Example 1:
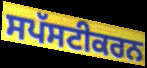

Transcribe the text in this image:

ਸਪੱਸਟੀਕਰਨ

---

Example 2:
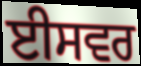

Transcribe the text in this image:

ਈਸਵਰ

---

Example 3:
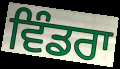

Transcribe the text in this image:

ਵਿੰਡਰਾ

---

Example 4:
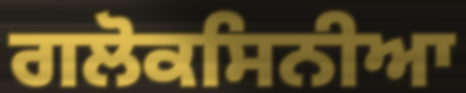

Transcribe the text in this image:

ਗਲੋਕਸਿਨੀਆ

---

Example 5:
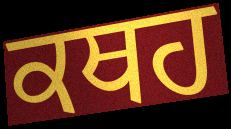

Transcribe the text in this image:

ਕਥਹ